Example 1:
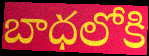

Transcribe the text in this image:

బాధలోకి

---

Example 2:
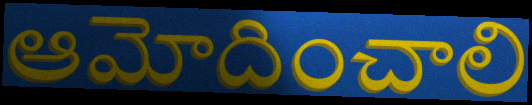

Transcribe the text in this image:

ఆమోదించాలి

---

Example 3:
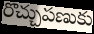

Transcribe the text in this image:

రొచ్చుపణుకు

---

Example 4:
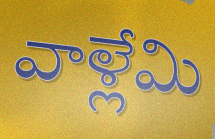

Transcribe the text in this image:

వాళ్లేమి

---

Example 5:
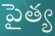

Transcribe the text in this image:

పైత్య